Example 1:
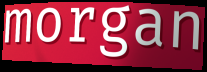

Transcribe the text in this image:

morgan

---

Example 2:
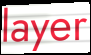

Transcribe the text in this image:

layer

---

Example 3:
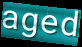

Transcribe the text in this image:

aged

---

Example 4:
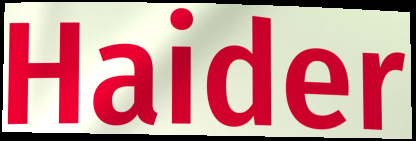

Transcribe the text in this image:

Haider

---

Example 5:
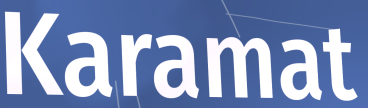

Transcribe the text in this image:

Karamat